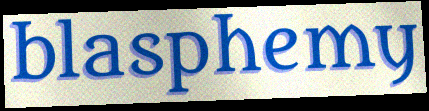
blasphemy